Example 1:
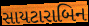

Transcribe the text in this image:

સાયટારાબિન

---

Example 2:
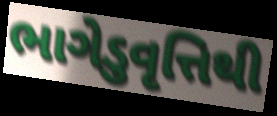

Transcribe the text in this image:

ભાગેડુવૃત્તિથી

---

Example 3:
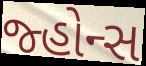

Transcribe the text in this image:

જ્હોન્સ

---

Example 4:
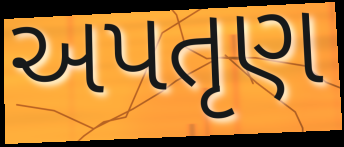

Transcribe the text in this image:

અપતૃણ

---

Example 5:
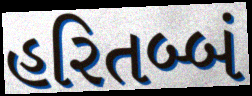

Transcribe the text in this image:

હરિતબ્બં